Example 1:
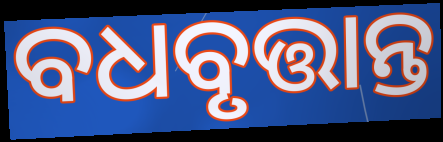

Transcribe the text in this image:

ବଧବୃତ୍ତାନ୍ତ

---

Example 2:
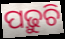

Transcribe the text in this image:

ପଢ଼ୁଚି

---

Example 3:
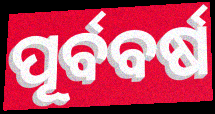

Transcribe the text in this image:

ପୂର୍ବବର୍ଷ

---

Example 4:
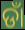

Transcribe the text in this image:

ଡାଁ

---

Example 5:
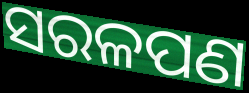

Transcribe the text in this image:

ସରଳପଣ